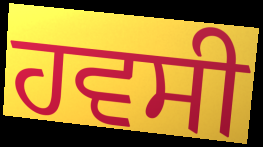
ਹਵਸੀ